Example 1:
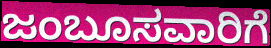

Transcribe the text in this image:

ಜಂಬೂಸವಾರಿಗೆ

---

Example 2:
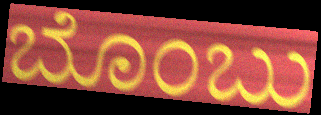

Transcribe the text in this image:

ಬೊಂಬು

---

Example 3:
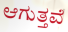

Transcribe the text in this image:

ಆಗುತ್ತವೆ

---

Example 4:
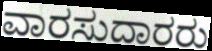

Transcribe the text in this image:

ವಾರಸುದಾರರು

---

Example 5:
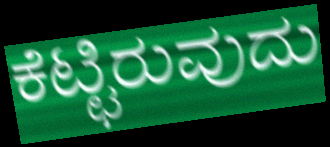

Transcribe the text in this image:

ಕೆಟ್ಟಿರುವುದು